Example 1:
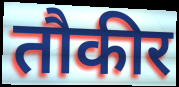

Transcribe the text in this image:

तौकीर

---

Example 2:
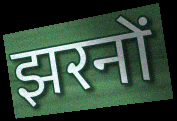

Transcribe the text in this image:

झरनों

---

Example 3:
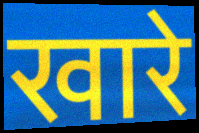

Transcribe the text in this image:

खारे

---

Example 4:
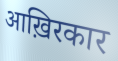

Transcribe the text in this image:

आख़िरकार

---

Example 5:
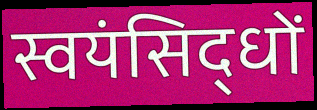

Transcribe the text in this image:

स्वयंसिद्धों